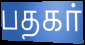
பதகர்